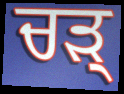
ਚੜ੍